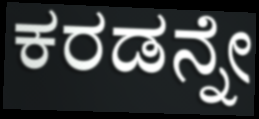
ಕರಡನ್ನೇ